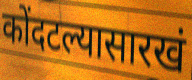
कोंदटल्यासारखं